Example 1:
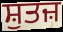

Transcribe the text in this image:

ਸ਼ੁਤਜ਼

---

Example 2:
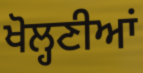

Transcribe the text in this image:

ਖੋਲ੍ਹਣੀਆਂ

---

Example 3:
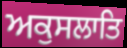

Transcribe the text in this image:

ਅਕੁਸਲਾਤਿ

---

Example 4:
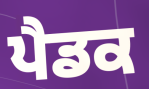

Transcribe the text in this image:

ਪੈਡਕ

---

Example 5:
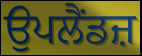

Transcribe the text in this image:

ਉਪਲੈਂਡਜ਼